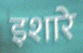
इशारे